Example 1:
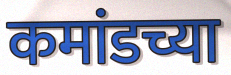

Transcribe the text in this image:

कमांडच्या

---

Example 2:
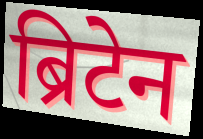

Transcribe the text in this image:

ब्रिटेन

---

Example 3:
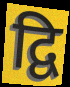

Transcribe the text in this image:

द्वि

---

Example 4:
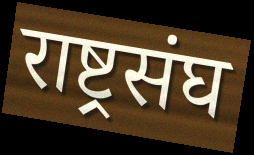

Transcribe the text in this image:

राष्ट्रसंघ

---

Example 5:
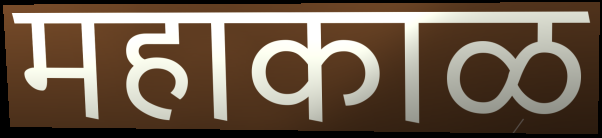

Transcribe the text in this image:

महाकाळ